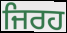
ਜਿਰਹ